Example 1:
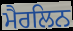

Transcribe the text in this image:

ਮੈਰਲਿਨ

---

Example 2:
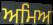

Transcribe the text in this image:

ਅਮਿਅ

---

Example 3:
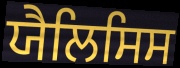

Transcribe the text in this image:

ਯੈਲਿਸਿਸ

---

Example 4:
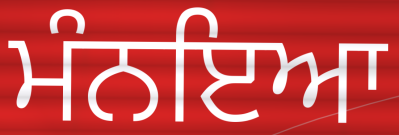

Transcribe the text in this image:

ਮੰਨਇਆ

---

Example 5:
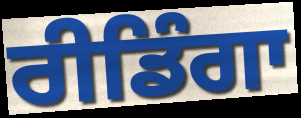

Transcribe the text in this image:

ਰੀਡਿੰਗਾ